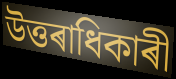
উত্তৰাধিকাৰী